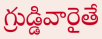
గ్రుడ్డివారైతే